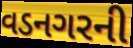
વડનગરની